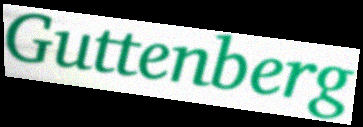
Guttenberg